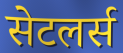
सेटलर्स